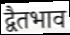
द्वैतभाव